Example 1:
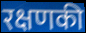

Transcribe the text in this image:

रक्षणकी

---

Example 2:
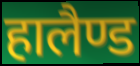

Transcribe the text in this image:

हालैण्ड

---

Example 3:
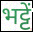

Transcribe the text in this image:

भट्टें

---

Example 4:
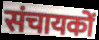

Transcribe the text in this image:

संचायकों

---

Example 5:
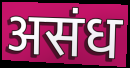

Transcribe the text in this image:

असंध